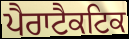
ਪੈਰਾਟੈਕਟਿਕ